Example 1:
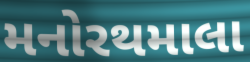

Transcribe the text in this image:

મનોરથમાલા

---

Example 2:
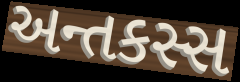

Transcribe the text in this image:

અન્તકસ્સ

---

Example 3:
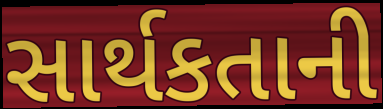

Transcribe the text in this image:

સાર્થકતાની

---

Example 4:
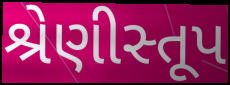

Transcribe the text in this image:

શ્રેણીસ્તૂપ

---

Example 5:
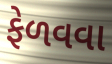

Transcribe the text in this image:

ફેળવવા